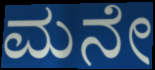
ಮನೇ